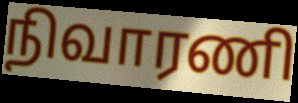
நிவாரணி